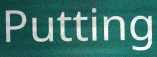
Putting